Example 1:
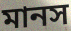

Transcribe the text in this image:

মানস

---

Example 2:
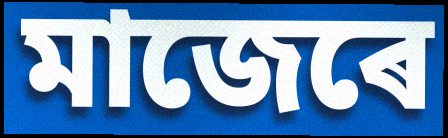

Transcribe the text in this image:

মাজেৰে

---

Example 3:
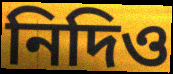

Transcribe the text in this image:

নিদিও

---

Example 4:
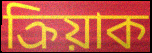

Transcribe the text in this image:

ক্ৰিয়াক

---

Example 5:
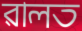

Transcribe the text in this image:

ৱালত